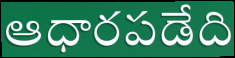
ఆధారపడేది